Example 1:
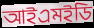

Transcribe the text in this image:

আইএমইডি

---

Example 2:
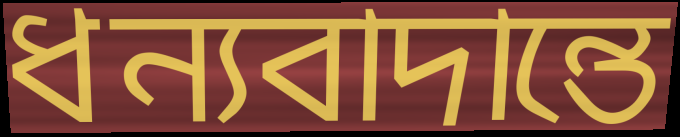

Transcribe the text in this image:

ধন্যবাদান্তে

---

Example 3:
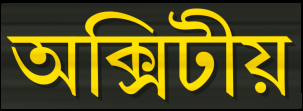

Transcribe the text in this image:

অক্সিটীয়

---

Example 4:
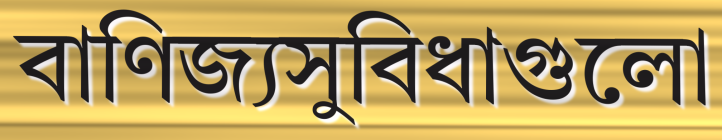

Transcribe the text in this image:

বাণিজ্যসুবিধাগুলো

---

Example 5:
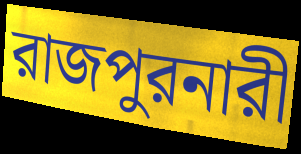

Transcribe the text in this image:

রাজপুরনারী